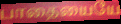
பாதையையே